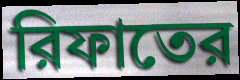
রিফাতের